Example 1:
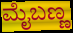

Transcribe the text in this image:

ಮೈಬಣ್ಣ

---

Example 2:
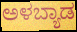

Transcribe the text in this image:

ಅಳಬ್ಯಾಡ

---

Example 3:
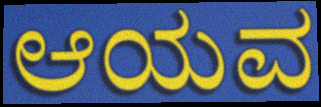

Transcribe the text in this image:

ಆಯವ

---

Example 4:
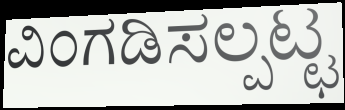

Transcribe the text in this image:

ವಿಂಗಡಿಸಲ್ಪಟ್ಟ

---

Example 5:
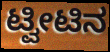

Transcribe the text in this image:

ಟ್ವೀಟಿನ